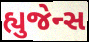
હ્યુજેન્સ